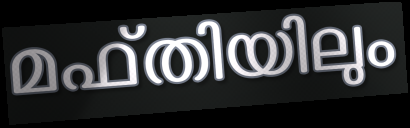
മഫ്തിയിലും